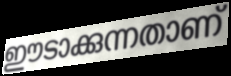
ഈടാക്കുന്നതാണ്